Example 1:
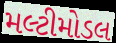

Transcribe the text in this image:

મલ્ટીમોડલ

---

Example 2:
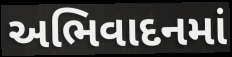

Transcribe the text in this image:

અભિવાદનમાં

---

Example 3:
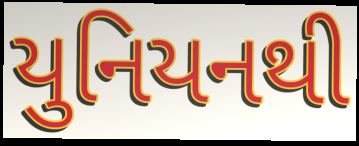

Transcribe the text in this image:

યુનિયનથી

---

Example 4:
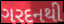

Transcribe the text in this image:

ગરદનથી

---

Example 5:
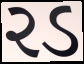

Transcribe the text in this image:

રડ